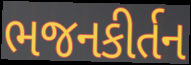
ભજનકીર્તન